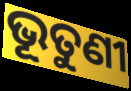
ଭୂତୁଣୀ